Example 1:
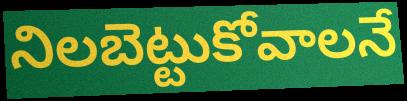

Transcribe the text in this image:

నిలబెట్టుకోవాలనే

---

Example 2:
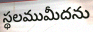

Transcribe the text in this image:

స్థలముమీదను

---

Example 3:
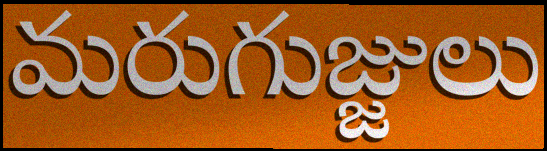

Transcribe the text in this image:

మరుగుజ్జులు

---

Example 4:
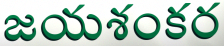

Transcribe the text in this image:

జయశంకర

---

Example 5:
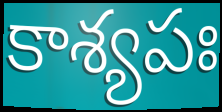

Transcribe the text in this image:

కాశ్యపః